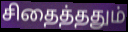
சிதைத்ததும்